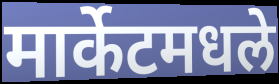
मार्केटमधले